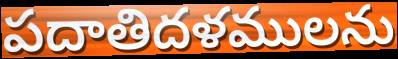
పదాతిదళములను